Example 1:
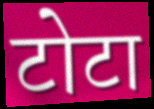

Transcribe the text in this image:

टोटा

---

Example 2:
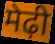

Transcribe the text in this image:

मेढ़ी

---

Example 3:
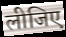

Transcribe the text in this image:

लीजिए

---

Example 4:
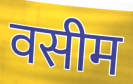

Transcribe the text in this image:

वसीम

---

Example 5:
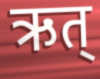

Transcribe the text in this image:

ऋत्